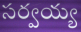
సర్వయ్య